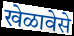
खेळावेसे